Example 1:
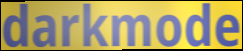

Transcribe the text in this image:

darkmode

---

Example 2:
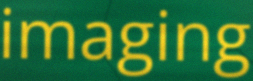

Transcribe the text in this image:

imaging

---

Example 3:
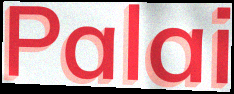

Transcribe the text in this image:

Palai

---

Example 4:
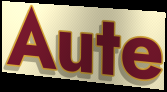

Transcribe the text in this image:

Aute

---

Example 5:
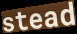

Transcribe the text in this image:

stead